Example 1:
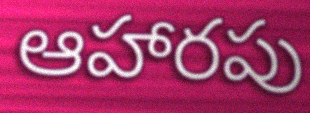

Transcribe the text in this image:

ఆహారపు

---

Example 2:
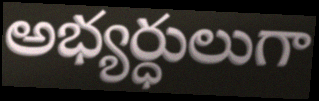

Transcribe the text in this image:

అభ్యర్ధులుగా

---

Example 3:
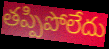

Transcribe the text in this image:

తప్పిపోలేదు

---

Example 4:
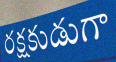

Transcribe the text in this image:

రక్షకుడుగా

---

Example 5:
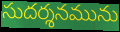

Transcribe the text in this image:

సుదర్శనమును